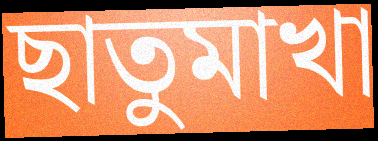
ছাতুমাখা